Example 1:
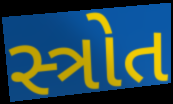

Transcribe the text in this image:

સ્ત્રોત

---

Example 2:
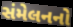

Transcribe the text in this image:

સંમેલનનો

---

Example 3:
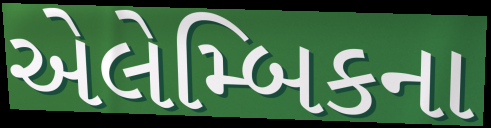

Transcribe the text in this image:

એલેમ્બિકના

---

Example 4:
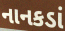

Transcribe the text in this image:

નાનકડાં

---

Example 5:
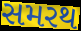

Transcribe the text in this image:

સમરથ